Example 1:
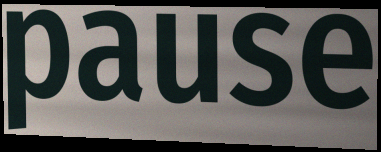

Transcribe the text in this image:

pause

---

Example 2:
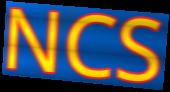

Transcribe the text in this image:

NCS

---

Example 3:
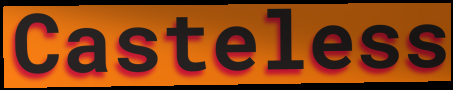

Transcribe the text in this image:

Casteless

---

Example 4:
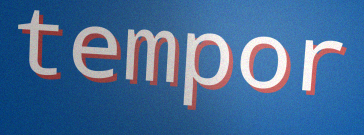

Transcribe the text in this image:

tempor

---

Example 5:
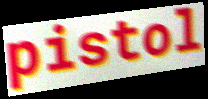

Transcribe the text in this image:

pistol